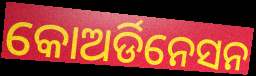
କୋଅର୍ଡିନେସନ